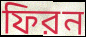
ফিরন